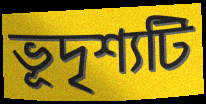
ভূদৃশ্যটি